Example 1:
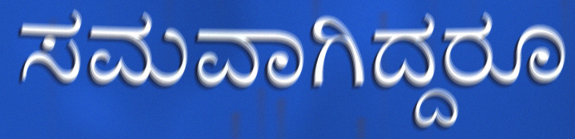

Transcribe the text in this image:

ಸಮವಾಗಿದ್ದರೂ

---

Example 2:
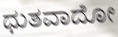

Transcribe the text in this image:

ಧುತವಾದೋ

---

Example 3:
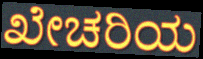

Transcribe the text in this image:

ಖೇಚರಿಯ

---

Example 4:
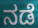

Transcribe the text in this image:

ನಡೆ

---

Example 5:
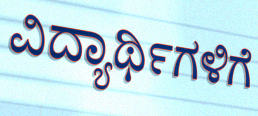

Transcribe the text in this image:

ವಿದ್ಯಾರ್ಥಿಗಳಿಗೆ